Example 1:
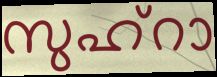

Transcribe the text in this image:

സുഹ്റാ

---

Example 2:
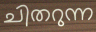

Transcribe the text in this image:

ചിതറുന്ന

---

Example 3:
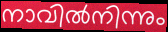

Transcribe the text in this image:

നാവിൽനിന്നും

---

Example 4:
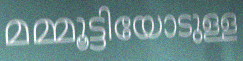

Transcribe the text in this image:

മമ്മൂട്ടിയോടുള്ള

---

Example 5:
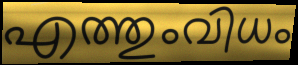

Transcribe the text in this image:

എത്തുംവിധം